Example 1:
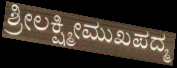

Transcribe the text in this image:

ಶ್ರೀಲಕ್ಷ್ಮೀಮುಖಪದ್ಮ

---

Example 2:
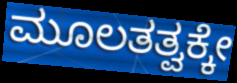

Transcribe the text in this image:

ಮೂಲತತ್ವಕ್ಕೇ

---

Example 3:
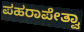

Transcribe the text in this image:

ಪಹರಾಪೇತ್ವಾ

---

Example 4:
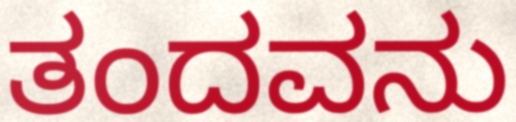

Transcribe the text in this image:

ತಂದವನು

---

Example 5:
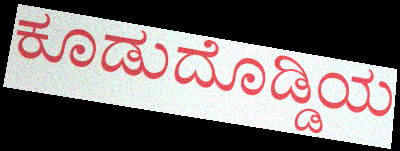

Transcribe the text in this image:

ಕೂಡುದೊಡ್ಡಿಯ